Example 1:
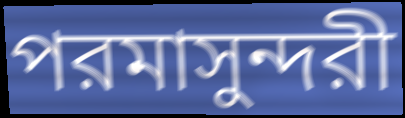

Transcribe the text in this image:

পরমাসুন্দরী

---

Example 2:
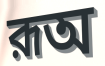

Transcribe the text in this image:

রূঅ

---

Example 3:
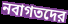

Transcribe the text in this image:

নবাগতদের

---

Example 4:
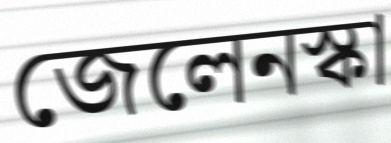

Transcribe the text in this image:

জেলেনস্কা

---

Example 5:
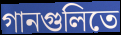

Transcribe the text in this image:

গানগুলিতে